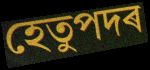
হেতুপদৰ